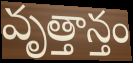
వృత్తాన్తం